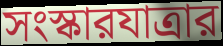
সংস্কারযাত্রার